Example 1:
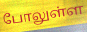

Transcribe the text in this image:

போலுள்ள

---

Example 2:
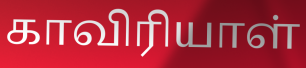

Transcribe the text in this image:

காவிரியாள்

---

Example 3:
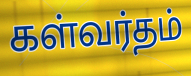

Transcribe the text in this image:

கள்வர்தம்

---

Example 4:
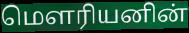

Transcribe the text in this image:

மௌரியனின்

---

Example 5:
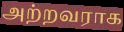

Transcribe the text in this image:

அற்றவராக